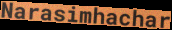
Narasimhachar